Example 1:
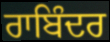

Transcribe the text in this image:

ਰਾਬਿੰਦਰ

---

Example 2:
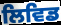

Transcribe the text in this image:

ਲਿਵਿਡ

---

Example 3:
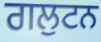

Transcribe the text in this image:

ਗਲੁਟਨ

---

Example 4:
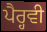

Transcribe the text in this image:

ਪੈਰ੍ਹਵੀ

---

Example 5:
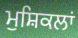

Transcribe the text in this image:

ਮੁਸ਼ਿਕਲਾਂ